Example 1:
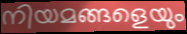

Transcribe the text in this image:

നിയമങ്ങളെയും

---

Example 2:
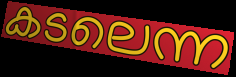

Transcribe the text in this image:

കടലെന്ന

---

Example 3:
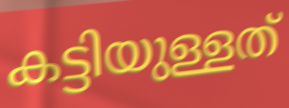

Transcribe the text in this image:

കട്ടിയുള്ളത്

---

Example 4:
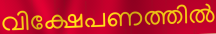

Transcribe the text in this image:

വിക്ഷേപണത്തിൽ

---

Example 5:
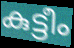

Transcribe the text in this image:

കുട്ടീം